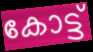
കോട്ട്